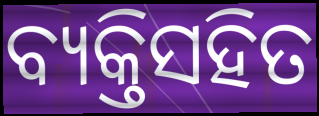
ବ୍ୟକ୍ତିସହିତ